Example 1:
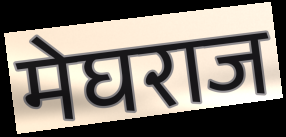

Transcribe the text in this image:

मेघराज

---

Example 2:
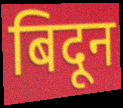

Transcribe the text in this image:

बिदून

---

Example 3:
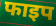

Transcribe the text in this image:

फाइप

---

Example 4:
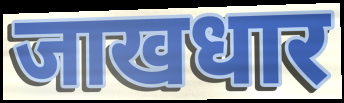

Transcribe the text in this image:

जाखधार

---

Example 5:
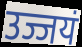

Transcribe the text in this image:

उज्जयं